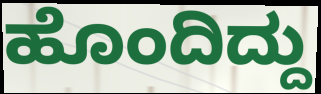
ಹೊಂದಿದ್ದು